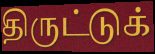
திருட்டுக்